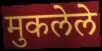
मुकलेले